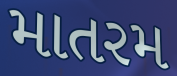
માતરમ